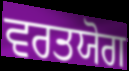
ਵਰਤਯੋਗ